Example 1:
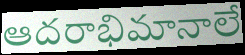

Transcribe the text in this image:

ఆదరాభిమానాలే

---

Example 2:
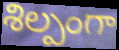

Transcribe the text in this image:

శిల్పంగా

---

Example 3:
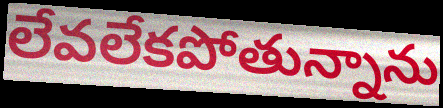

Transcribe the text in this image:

లేవలేకపోతున్నాను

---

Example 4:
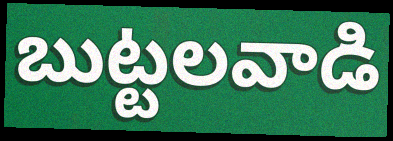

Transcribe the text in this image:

బుట్టలవాడి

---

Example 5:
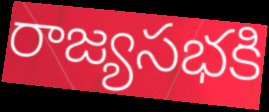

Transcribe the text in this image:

రాజ్యసభకి